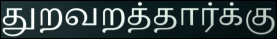
துறவறத்தார்க்கு